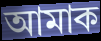
আমাক